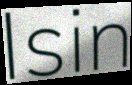
Isin